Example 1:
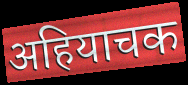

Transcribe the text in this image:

अहियाचक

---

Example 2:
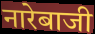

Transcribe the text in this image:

नारेबाजी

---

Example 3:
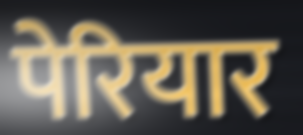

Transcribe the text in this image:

पेरियार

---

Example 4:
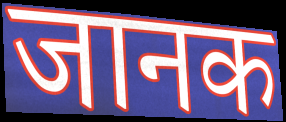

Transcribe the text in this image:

जानक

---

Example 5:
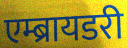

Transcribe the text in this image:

एम्ब्रायडरी